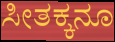
ಸೀತಕ್ಕನೂ